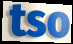
tso